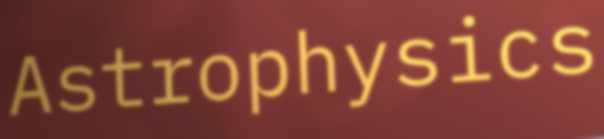
Astrophysics